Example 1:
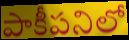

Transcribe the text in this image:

పాకీపనిలో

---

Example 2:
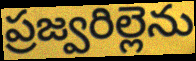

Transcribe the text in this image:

ప్రజ్వరిల్లెను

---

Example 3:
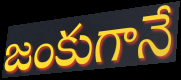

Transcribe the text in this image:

జంకుగానే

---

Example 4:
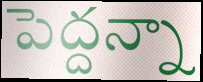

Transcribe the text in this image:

పెద్దన్నా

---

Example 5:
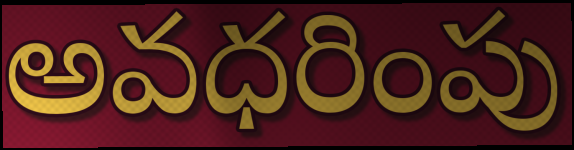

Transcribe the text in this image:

అవధరింపు